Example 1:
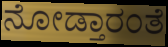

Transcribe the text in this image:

ನೋಡ್ತಾರಂತೆ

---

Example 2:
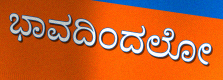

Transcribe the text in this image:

ಭಾವದಿಂದಲೋ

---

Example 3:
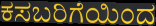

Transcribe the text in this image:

ಕಸಬರಿಗೆಯಿಂದ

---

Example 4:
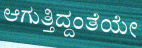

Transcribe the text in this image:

ಆಗುತ್ತಿದ್ದಂತೆಯೇ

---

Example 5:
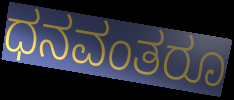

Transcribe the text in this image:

ಧನವಂತರೂ